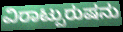
ವಿರಾಟ್ಪುರುಷನು